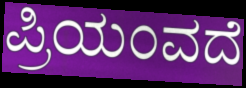
ಪ್ರಿಯಂವದೆ